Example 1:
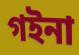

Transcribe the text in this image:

গইনা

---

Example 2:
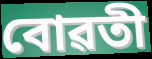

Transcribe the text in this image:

বোৱতী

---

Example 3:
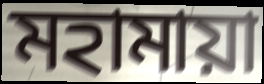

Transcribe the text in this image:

মহামায়া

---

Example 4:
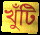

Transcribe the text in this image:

খুঁটি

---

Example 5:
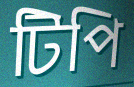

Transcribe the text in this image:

টিপি